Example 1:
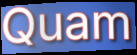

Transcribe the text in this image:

Quam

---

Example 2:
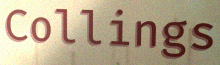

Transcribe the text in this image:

Collings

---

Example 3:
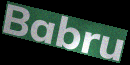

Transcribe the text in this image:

Babru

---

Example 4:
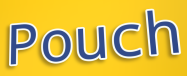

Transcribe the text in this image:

Pouch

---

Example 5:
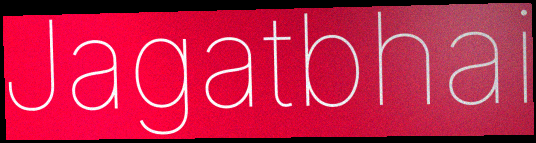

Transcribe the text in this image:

Jagatbhai